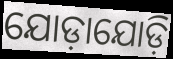
ଯୋଡ଼ାଯୋଡ଼ି